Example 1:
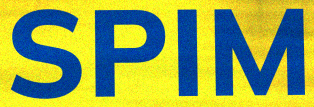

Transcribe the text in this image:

SPIM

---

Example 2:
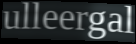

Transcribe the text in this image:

ulleergal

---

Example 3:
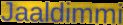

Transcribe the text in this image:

Jaaldimmi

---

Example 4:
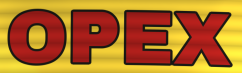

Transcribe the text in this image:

OPEX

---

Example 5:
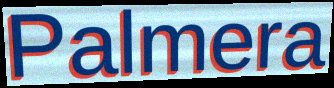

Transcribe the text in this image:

Palmera